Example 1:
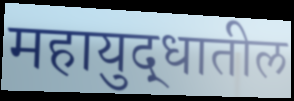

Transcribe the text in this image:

महायुद्धातील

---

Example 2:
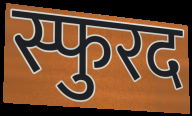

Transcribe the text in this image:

स्फुरद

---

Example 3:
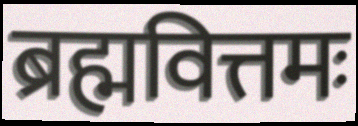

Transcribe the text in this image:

ब्रह्मवित्तमः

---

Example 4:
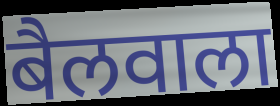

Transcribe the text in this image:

बैलवाला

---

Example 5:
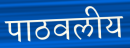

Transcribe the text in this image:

पाठवलीय